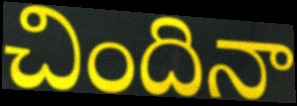
చిందినా